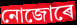
নোজোৰে